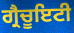
ਗ੍ਰੈਚੂਇਟੀ